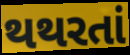
થથરતાં